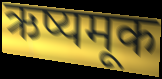
ऋष्यमूक